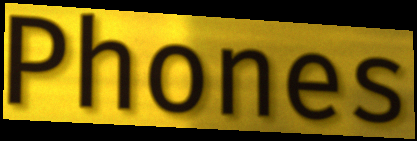
Phones